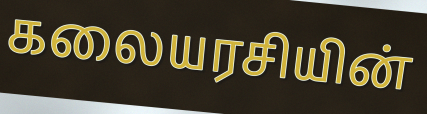
கலையரசியின்